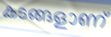
കടങ്ങളാണ്